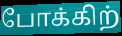
போக்கிற்